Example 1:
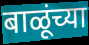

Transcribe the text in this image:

बाळूंच्या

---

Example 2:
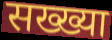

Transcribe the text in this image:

सख्ख्या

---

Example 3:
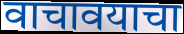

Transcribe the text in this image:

वाचावयाचा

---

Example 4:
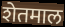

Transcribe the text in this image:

शेतमाल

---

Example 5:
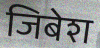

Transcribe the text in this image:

जिबेश